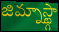
జిమ్నాస్ట్గా